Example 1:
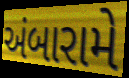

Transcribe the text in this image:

અંબારામે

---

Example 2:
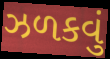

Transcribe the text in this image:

ઝળકવું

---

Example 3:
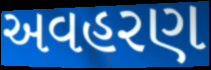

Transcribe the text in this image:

અવહરણ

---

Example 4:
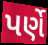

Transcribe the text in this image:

પર્ણે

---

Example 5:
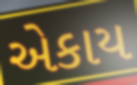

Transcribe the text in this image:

એકાય